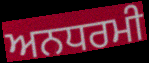
ਅਨਧਰਮੀ